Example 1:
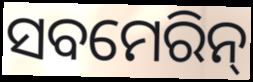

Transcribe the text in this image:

ସବମେରିନ୍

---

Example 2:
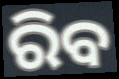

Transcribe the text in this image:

ରିବ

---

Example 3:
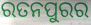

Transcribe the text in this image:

ରତନପୁରର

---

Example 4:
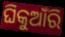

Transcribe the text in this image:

ଘିକୁଆଁରି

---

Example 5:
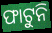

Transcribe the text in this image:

ଫାଟୁନି